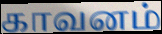
காவனம்